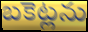
బకెట్లను